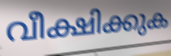
വീക്ഷിക്കുക